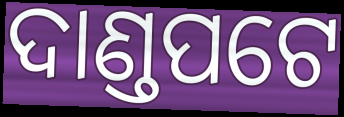
ଦାଣ୍ଡପଟେ